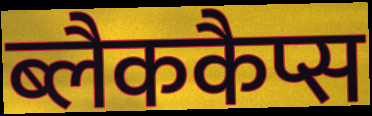
ब्लैककैप्स